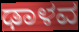
ಢಾಳವ